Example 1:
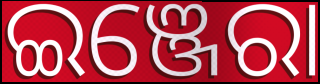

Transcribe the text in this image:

ଇଞ୍ଜେରା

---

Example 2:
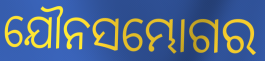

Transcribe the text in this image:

ଯୌନସମ୍ଭୋଗର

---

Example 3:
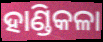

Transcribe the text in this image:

ହାଣ୍ଡିକଳା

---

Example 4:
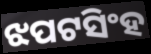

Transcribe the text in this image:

ଝପଟସିଂହ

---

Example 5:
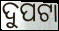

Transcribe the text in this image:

ଦୁପଟା